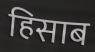
हिसाब